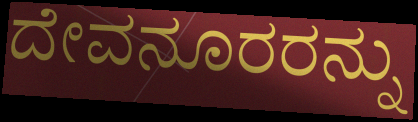
ದೇವನೂರರನ್ನು